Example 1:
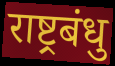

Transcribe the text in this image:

राष्ट्रबंधु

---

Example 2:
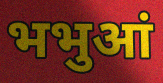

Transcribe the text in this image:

भभुआं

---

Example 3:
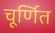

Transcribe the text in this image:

चूर्णित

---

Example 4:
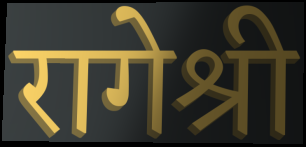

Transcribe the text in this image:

रागेश्री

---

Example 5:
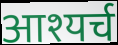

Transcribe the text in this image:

आश्यर्च